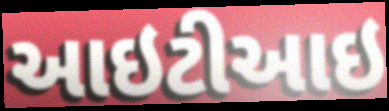
આઇટીઆઇ